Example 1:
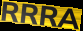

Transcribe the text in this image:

RRRA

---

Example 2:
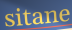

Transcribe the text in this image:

sitane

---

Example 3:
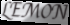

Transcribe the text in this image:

LEMON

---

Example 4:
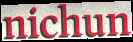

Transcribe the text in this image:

nichun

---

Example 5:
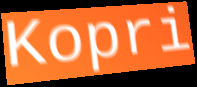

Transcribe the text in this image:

Kopri